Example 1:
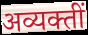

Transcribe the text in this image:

अव्यक्तीं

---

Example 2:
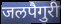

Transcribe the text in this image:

जलपैगुरी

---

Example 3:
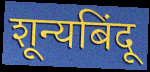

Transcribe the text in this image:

शून्यबिंदू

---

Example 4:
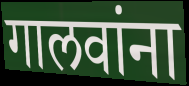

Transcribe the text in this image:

गालवांना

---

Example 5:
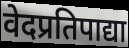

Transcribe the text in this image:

वेदप्रतिपाद्या